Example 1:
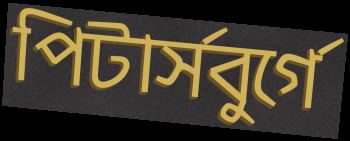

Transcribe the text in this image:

পিটাৰ্সবুৰ্গে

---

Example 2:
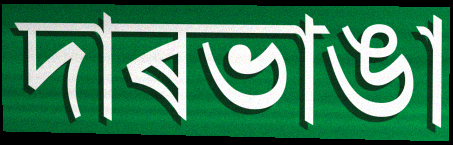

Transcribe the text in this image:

দাৰভাঙা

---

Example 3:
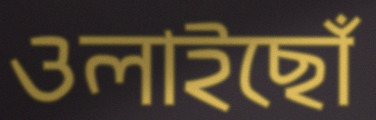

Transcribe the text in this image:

ওলাইছোঁ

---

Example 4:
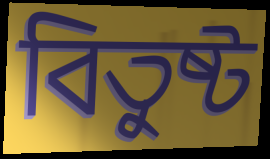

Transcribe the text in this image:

বিতুষ্ট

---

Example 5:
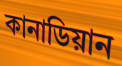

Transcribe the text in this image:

কানাডিয়ান